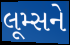
લૂમ્સને